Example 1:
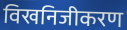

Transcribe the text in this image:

विखनिजीकरण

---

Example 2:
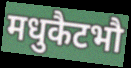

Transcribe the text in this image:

मधुकैटभौ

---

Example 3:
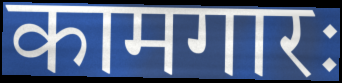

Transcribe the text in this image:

कामगारः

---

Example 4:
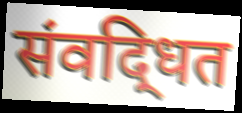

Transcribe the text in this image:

संवद्धित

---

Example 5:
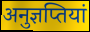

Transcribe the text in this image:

अनुज्ञप्तियां